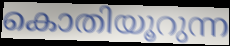
കൊതിയൂറുന്ന